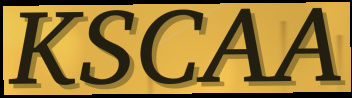
KSCAA